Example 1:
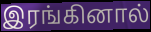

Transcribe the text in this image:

இரங்கினால்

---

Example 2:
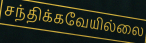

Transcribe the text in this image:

சந்திக்கவேயில்லை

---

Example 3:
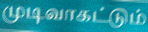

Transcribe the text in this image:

முடிவாகட்டும்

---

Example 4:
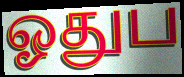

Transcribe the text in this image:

ஓதுப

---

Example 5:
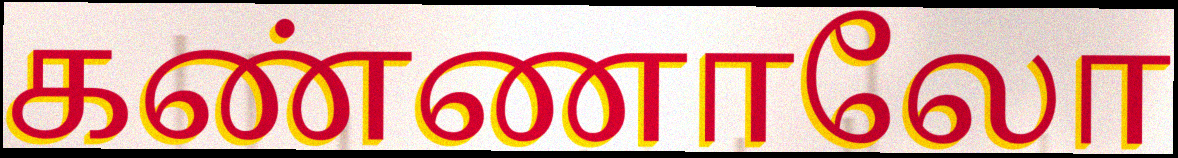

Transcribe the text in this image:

கண்ணாலோ